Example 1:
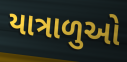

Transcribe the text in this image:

યાત્રાળુઓ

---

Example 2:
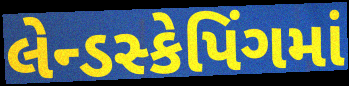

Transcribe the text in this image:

લેન્ડસ્કેપિંગમાં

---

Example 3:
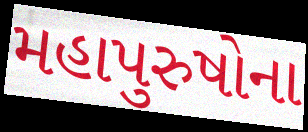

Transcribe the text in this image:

મહાપુરુષોના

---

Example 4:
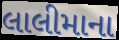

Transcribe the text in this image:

લાલીમાના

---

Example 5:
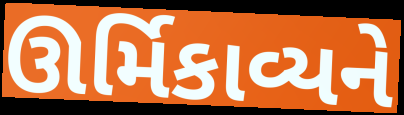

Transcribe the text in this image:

ઊર્મિકાવ્યને